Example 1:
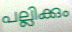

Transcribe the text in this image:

പല്ലിക്കും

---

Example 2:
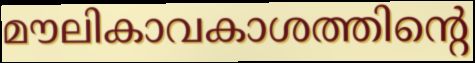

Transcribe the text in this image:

മൗലികാവകാശത്തിന്റെ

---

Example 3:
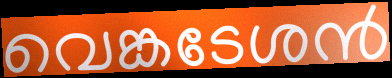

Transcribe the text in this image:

വെങ്കടേശൻ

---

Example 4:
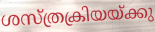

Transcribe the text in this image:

ശസ്ത്രക്രിയയ്ക്കു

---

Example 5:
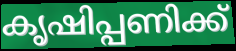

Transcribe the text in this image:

കൃഷിപ്പണിക്ക്